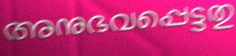
അനുഭവപ്പെട്ടതു